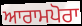
ਆਰਾਮਪੋਰਾ